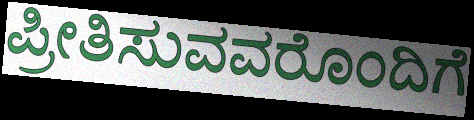
ಪ್ರೀತಿಸುವವರೊಂದಿಗೆ